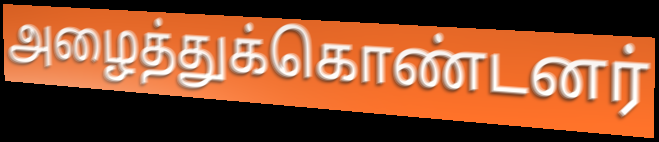
அழைத்துக்கொண்டனர்